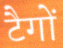
टैगों